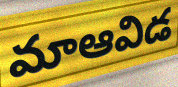
మాఆవిడ